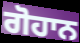
ਗੋਹਾਨ